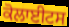
ਕੋਲਾਈਟਸ